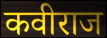
कवीराज